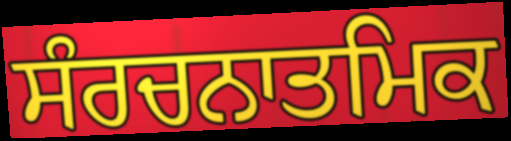
ਸੰਰਚਨਾਤਮਿਕ